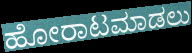
ಹೋರಾಟಮಾಡಲು